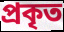
প্ৰকৃত